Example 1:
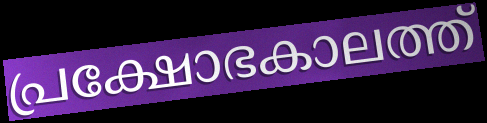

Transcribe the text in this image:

പ്രക്ഷോഭകാലത്ത്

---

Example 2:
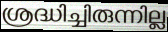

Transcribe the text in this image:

ശ്രദ്ധിച്ചിരുന്നില്ല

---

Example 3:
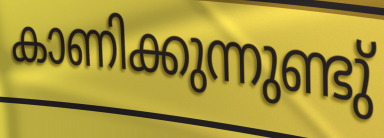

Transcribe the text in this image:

കാണിക്കുന്നുണ്ടു്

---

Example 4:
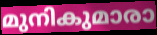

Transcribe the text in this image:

മുനികുമാരാ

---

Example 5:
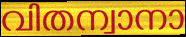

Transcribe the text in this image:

വിതന്വാനാ